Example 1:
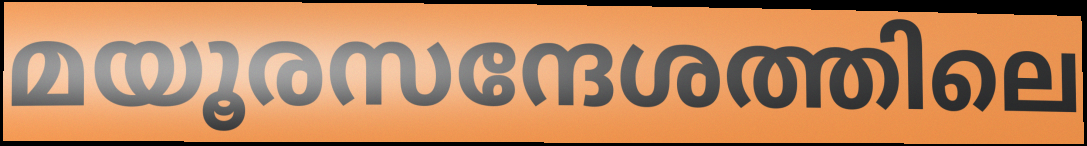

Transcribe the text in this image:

മയൂരസന്ദേശത്തിലെ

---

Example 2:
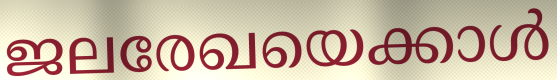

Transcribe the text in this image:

ജലരേഖയെക്കാൾ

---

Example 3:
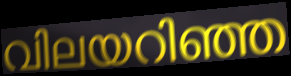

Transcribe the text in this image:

വിലയറിഞ്ഞ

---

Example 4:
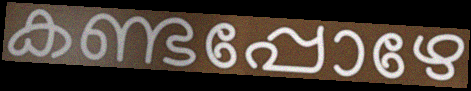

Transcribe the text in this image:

കണ്ടപ്പോഴേ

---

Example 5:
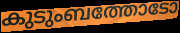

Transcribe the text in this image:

കുടുംബത്തോടോ